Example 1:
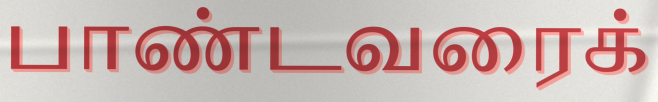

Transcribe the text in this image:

பாண்டவரைக்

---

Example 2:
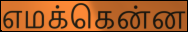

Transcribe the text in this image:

எமக்கென்ன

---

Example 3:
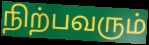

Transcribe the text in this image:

நிற்பவரும்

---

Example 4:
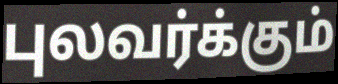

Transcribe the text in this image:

புலவர்க்கும்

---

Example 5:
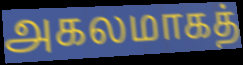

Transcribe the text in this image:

அகலமாகத்